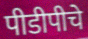
पीडीपीचे